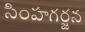
సింహగర్జన